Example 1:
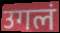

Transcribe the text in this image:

उगलं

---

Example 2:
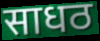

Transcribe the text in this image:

साधठ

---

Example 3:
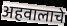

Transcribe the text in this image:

अहवालाचे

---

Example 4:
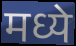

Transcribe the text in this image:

मध्ये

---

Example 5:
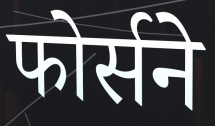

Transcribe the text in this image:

फोर्सने